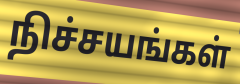
நிச்சயங்கள்